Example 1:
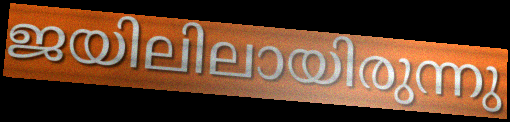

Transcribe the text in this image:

ജയിലിലായിരുന്നു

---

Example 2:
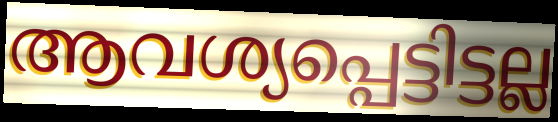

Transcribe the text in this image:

ആവശ്യപ്പെട്ടിട്ടല്ല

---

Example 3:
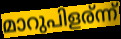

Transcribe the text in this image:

മാറുപിളര്ന്ന്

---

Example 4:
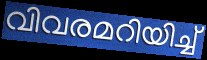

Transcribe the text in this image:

വിവരമറിയിച്ച്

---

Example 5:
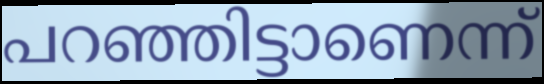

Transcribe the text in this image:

പറഞ്ഞിട്ടാണെന്ന്